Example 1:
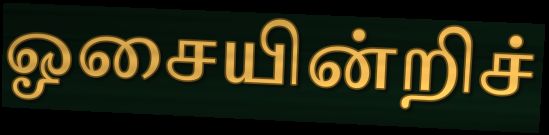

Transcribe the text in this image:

ஓசையின்றிச்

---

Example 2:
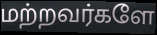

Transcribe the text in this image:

மற்றவர்களே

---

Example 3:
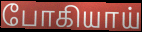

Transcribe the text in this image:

போகியாய்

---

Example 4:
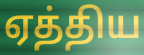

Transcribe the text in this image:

ஏத்திய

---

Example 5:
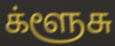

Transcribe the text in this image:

க்ளூசு